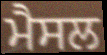
ਮੈਸਲ